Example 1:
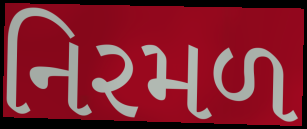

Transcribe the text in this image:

નિરમળ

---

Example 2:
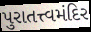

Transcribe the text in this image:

પુરાતત્ત્વમંદિર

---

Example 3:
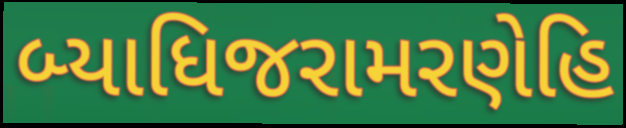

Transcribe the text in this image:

બ્યાધિજરામરણેહિ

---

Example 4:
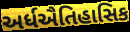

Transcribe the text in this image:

અર્ધઐતિહાસિક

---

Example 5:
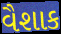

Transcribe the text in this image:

વૈશાક